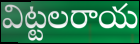
విట్టలరాయ